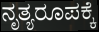
ನೃತ್ಯರೂಪಕ್ಕೆ